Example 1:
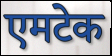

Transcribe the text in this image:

एमटेक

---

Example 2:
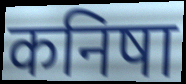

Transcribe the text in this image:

कनिषा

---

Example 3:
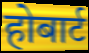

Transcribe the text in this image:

होबार्ट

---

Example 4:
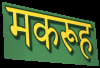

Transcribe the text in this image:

मकरूह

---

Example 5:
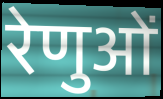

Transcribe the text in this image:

रेणुओं